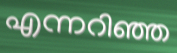
എന്നറിഞ്ഞ